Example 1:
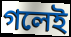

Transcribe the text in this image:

গলেই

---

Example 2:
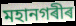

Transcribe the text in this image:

মহানগৰীৰ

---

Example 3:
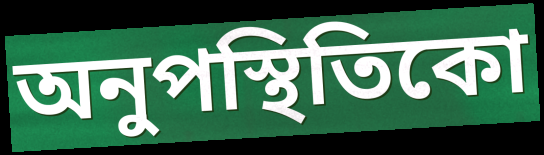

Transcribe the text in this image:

অনুপস্থিতিকো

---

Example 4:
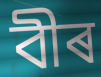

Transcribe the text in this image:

বীৰ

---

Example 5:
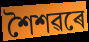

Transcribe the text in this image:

শৈশৱৰে